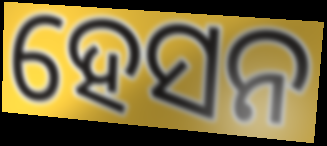
ହେସନ